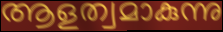
ആളത്വമാകുന്നു